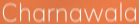
Charnawala